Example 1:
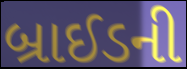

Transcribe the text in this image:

બ્રાઈડની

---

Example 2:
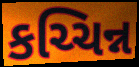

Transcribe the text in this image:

કચ્ચિન્ન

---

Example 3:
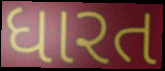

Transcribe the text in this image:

ધારત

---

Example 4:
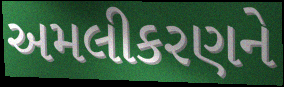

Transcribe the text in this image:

અમલીકરણને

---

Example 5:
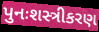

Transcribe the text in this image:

પુનઃશસ્ત્રીકરણ